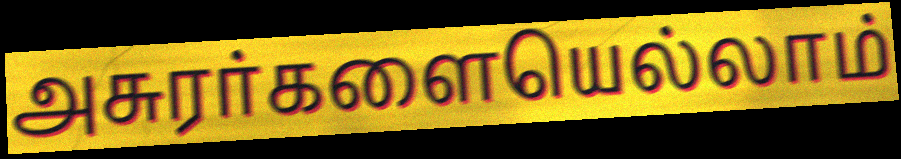
அசுரர்களையெல்லாம்